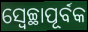
ସ୍ଵେଚ୍ଛାପୂର୍ବକ